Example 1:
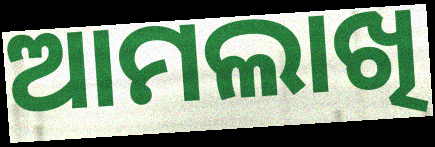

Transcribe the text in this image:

ଆମଲାଖି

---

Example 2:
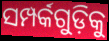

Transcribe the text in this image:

ସମ୍ପର୍କଗୁଡ଼ିକୁ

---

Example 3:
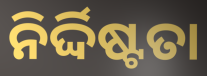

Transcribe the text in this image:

ନିର୍ଦ୍ଦିଷ୍ଟତା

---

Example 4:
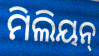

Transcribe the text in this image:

ମିଲିୟନ୍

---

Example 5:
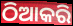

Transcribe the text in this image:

ଠିଆକରି